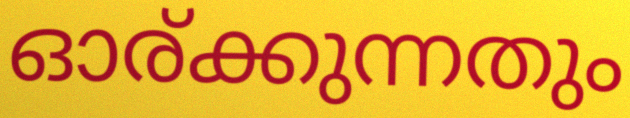
ഓര്ക്കുന്നതും